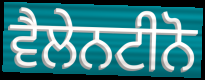
ਵੈਲੇਨਟੀਨੋ